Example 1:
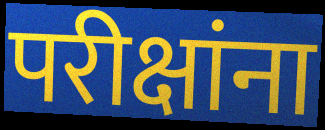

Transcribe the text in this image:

परीक्षांना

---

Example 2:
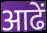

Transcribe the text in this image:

आढें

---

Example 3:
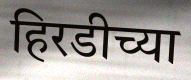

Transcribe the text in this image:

हिरडीच्या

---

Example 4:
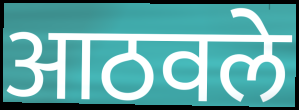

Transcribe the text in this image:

आठवले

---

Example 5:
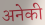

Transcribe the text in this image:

अनेकी